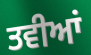
ਤਵੀਆਂ